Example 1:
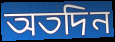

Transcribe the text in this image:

অতদিন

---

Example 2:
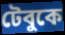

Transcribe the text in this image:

টেবুকে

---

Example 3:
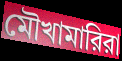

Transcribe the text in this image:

মৌখামারিরা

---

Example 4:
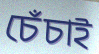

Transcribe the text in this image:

চেঁচাই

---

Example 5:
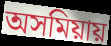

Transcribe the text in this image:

অসমিয়ায়